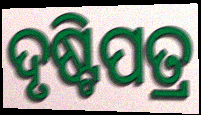
ଦୃଷ୍ଟିପତ୍ର